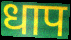
धाप